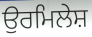
ਉਰਮਿਲੇਸ਼